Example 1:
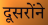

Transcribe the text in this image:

दूसरोंने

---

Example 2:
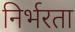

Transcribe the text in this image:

निर्भरता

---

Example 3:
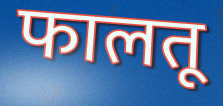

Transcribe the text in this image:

फालतू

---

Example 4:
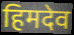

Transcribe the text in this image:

हिमदेव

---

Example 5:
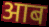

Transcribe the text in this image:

आब